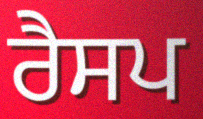
ਰੈਸਪ